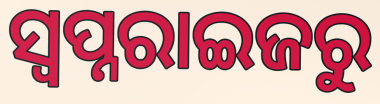
ସ୍ୱପ୍ନରାଇଜରୁ